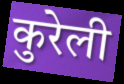
कुरेली